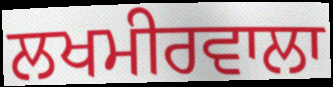
ਲਖਮੀਰਵਾਲਾ